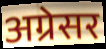
अग्रेसर